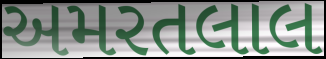
અમરતલાલ